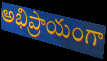
అభిప్రాయంగా